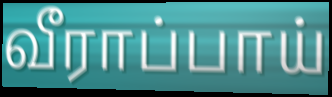
வீராப்பாய்